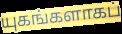
யுகங்களாகப்